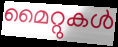
മൈറ്റുകൾ